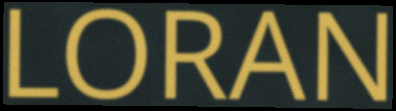
LORAN